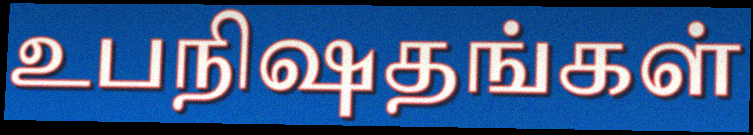
உபநிஷதங்கள்